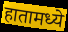
हातामध्ये